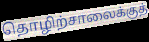
தொழிற்சாலைக்குத்